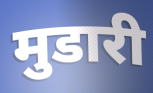
मुडारी